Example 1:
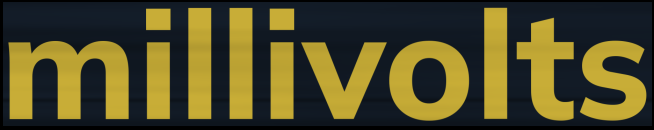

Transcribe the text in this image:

millivolts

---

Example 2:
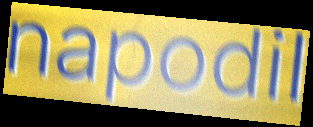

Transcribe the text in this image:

napodil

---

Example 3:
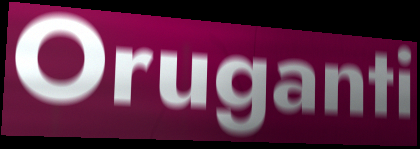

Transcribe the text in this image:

Oruganti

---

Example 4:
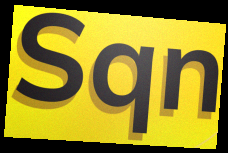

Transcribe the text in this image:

Sqn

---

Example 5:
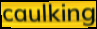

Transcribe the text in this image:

caulking